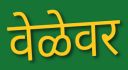
वेळेवर